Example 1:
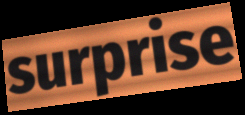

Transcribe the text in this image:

surprise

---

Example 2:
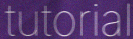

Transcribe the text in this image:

tutorial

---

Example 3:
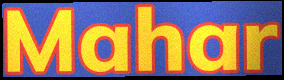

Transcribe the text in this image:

Mahar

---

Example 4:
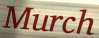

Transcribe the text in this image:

Murch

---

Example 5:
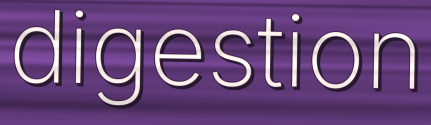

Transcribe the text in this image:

digestion